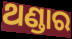
ଥଣ୍ଡାର